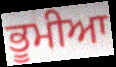
ਭੂਮੀਆ